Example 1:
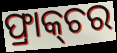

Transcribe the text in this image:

ଫ୍ରାକ୍‌ଚର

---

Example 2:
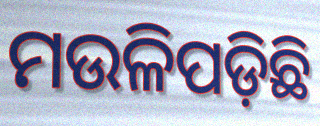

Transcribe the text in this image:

ମଉଳିପଡ଼ିଛି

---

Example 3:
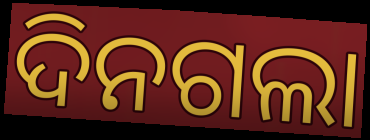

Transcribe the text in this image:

ଦିନଗଲା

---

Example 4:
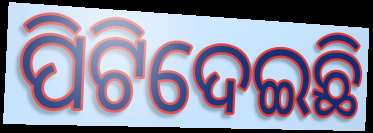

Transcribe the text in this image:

ପିଟିଦେଇଛି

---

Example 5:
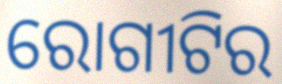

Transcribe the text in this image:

ରୋଗୀଟିର